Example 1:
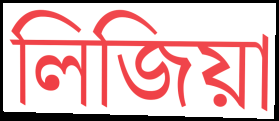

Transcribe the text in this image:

লিজিয়া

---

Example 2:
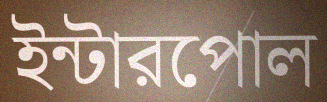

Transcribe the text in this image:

ইন্টারপোল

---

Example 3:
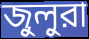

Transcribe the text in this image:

জুলুরা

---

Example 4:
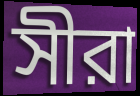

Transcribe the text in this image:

সীরা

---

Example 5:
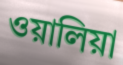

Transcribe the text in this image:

ওয়ালিয়া